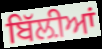
ਬਿੱਲ਼ੀਆਂ